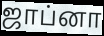
ஜாப்னா